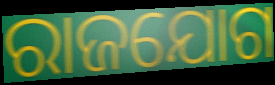
ରାଜଯୋଗ